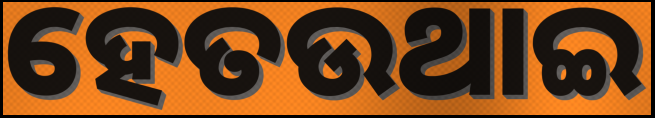
ହେତଉଥାଇ